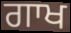
ਗਾਖ